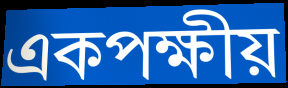
একপক্ষীয়